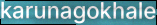
karunagokhale